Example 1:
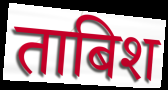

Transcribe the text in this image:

ताबिश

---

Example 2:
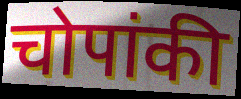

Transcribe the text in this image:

चोपांकी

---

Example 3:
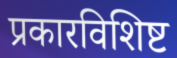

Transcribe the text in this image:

प्रकारविशिष्ट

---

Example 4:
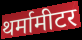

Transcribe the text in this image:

थर्मामीटर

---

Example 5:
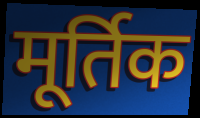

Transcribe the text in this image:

मूर्तिक